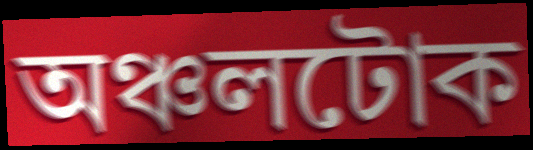
অঞ্চলটোক